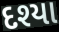
દશ્યા